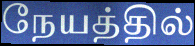
நேயத்தில்